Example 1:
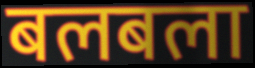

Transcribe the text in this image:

बलबला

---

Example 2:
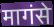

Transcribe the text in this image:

मागंसे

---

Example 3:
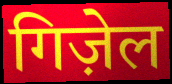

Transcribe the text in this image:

गिज़ेल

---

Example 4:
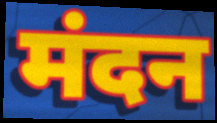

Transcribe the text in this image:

मंदन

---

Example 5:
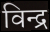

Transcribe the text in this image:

विन्द्र